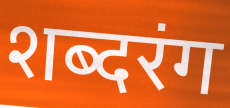
शब्दरंग